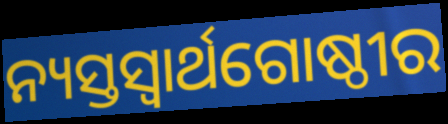
ନ୍ୟସ୍ତସ୍ୱାର୍ଥଗୋଷ୍ଠୀର